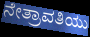
ನೇತ್ರಾವತಿಯು